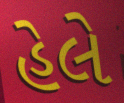
હેલે